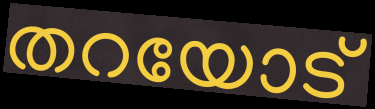
തറയോട്